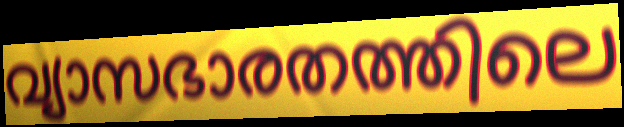
വ്യാസഭാരതത്തിലെ